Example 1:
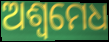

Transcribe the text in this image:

ଅଶ୍ବମେଧ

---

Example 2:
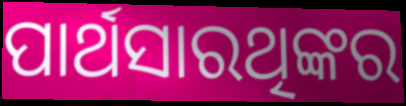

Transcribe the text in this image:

ପାର୍ଥସାରଥିଙ୍କର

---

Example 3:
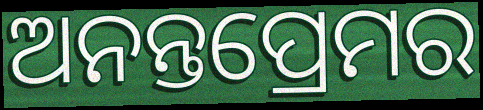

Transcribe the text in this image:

ଅନନ୍ତପ୍ରେମର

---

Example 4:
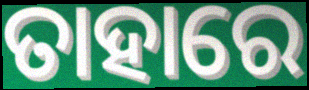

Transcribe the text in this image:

ତାହାରେ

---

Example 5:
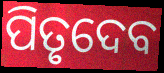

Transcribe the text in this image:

ପିତୃଦେବ